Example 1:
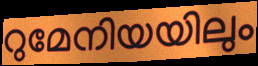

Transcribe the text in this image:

റുമേനിയയിലും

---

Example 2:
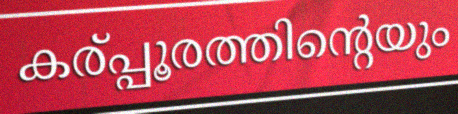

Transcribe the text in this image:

കര്പ്പൂരത്തിന്റെയും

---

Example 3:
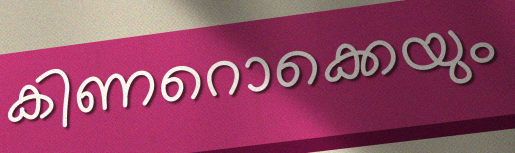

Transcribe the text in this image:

കിണറൊക്കെയും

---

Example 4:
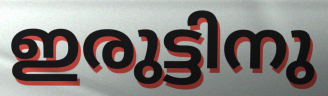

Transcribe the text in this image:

ഇരുട്ടിനു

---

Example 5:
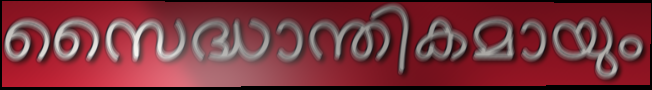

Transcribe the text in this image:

സൈദ്ധാന്തികമായും